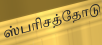
ஸ்பரிசத்தோடு